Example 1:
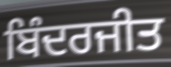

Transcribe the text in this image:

ਬਿੰਦਰਜੀਤ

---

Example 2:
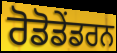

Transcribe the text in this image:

ਰੋਡੋਡੇਂਡਰਨ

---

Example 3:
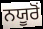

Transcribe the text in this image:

ਨਯੂਰੋਂ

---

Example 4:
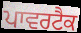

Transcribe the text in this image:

ਪਾਵਰਟੈਕ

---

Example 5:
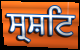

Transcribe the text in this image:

ਸ੍ਰਸ਼ਟਿ